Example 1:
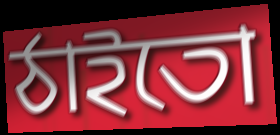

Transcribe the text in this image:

ঠাইতো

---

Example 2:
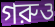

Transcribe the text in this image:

গৰুও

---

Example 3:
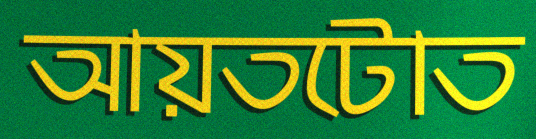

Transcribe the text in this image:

আয়তটোত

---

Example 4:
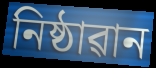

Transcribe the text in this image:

নিষ্ঠাৱান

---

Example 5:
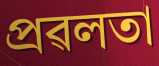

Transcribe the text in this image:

প্ৰৱলতা